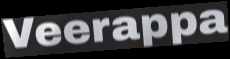
Veerappa